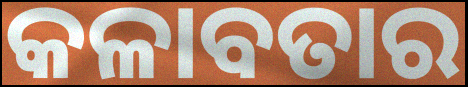
କଳାବତାର